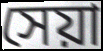
সেয়া